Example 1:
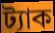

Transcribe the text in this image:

ট্যাক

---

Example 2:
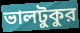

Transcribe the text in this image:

ভালটুকুর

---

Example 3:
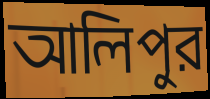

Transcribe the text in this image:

আলিপুর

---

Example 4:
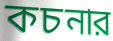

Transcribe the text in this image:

কচনার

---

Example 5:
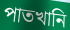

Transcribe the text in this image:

পাতখানি